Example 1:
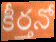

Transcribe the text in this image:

కీర్తనో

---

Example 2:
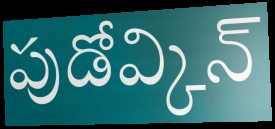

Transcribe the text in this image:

పుడోవ్కిన్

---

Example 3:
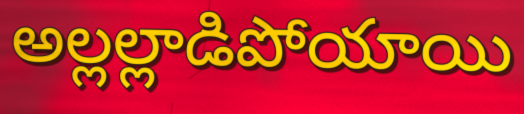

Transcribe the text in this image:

అల్లల్లాడిపోయాయి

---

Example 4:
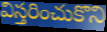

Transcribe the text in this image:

విస్తరించుకొని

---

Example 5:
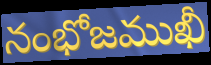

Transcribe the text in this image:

నంభోజముఖీ